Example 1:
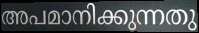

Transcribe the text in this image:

അപമാനിക്കുന്നതു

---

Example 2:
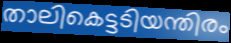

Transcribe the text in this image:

താലികെട്ടടിയന്തിരം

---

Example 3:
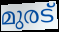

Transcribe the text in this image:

മുരട്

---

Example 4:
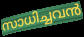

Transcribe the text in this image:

സാധിച്ചവൻ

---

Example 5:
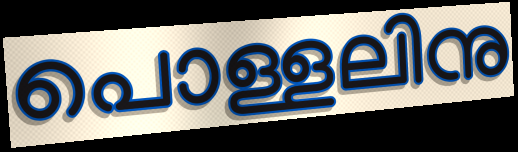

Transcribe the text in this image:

പൊള്ളലിനു